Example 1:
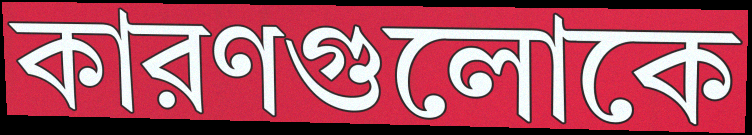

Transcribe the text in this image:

কারণগুলোকে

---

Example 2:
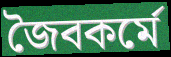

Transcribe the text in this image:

জৈবকর্মে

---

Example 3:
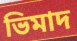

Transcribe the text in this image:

ভিমাদ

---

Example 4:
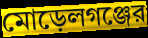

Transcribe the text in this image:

মোড়েলগঞ্জের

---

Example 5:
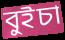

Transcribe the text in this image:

বুইচা